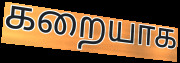
கறையாக